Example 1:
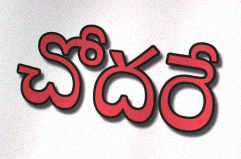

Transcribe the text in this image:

చోదరే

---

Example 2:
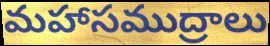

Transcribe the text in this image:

మహాసముద్రాలు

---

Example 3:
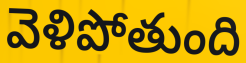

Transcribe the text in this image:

వెళిపోతుంది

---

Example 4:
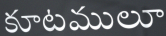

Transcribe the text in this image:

కూటములూ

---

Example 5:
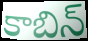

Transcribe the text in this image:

కాబిన్